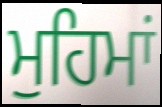
ਮੁਹਿਮਾਂ